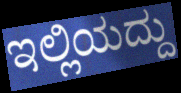
ಇಲ್ಲಿಯದ್ದು